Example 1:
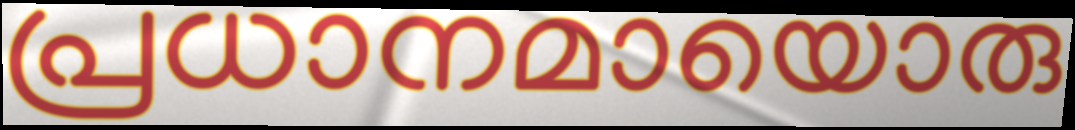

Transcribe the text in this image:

പ്രധാനമായൊരു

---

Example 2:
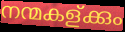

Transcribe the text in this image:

നന്മകള്ക്കും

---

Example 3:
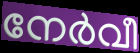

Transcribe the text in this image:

നേർവീ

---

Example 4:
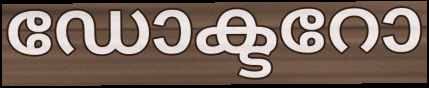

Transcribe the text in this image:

ഡോക്ടറോ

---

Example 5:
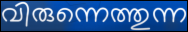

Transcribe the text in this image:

വിരുന്നെത്തുന്ന